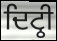
ਦਿਟ੍ਠੀ